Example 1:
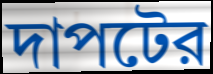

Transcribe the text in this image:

দাপটের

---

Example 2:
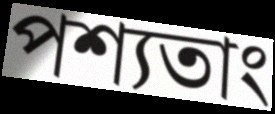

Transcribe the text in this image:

পশ্যতাং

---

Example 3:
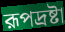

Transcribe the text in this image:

রূপদ্রষ্টা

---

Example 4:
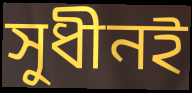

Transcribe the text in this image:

সুধীনই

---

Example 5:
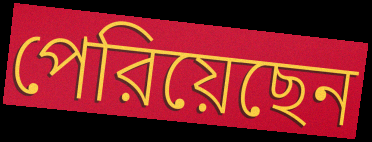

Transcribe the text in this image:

পেরিয়েছেন